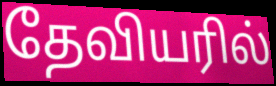
தேவியரில்